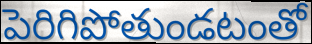
పెరిగిపోతుండటంతో